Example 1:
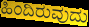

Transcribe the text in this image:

ಹಿಂದಿರುವುದು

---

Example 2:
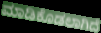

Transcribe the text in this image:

ಮಾಡಿಕೊಡಲಾಗಿದೆ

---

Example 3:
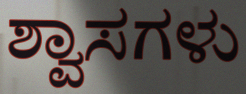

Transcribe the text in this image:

ಶ್ವಾಸಗಳು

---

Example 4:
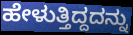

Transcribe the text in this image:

ಹೇಳುತ್ತಿದ್ದದನ್ನು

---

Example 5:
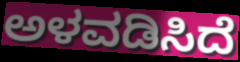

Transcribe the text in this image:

ಅಳವಡಿಸಿದೆ